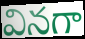
వినగా